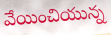
వేయించియున్న